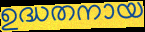
ഉദ്ധതനായ